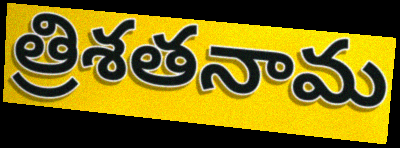
త్రిశతనామ